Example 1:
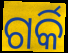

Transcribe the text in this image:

ଗର୍କି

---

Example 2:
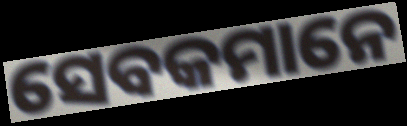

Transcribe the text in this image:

ସେବକମାନେ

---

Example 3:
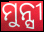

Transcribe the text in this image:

ମୁନ୍ସୀ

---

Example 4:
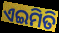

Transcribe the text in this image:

ଏଇମିତି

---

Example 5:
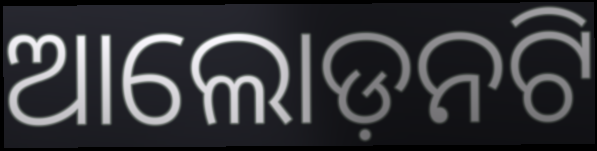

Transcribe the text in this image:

ଆଲୋଡ଼ନଟି